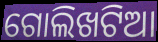
ଗୋଲିଖଟିଆ